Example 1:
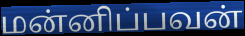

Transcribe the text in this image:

மன்னிப்பவன்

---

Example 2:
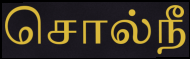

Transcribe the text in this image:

சொல்நீ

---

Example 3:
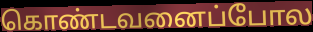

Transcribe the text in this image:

கொண்டவனைப்போல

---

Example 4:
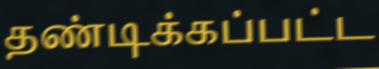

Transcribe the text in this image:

தண்டிக்கப்பட்ட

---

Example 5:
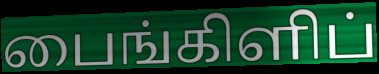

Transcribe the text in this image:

பைங்கிளிப்